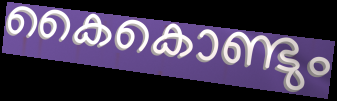
കൈകൊണ്ടും